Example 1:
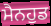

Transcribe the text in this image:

ਮੈਨਹੁਡ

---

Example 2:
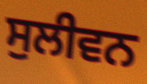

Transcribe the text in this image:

ਸੁਲੀਵਨ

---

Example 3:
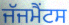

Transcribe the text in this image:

ਜੱਜਮੈਂਟਸ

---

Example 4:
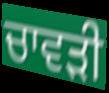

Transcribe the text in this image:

ਚਾਵੜੀ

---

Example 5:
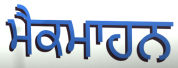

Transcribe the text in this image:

ਮੈਕਮਾਹਨ